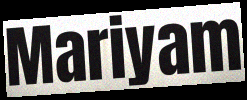
Mariyam